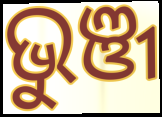
ଭୁଞ୍ଜ